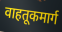
वाहतूकमार्ग